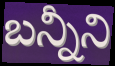
బన్నీని